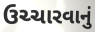
ઉચ્ચારવાનું